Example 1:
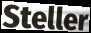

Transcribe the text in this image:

Steller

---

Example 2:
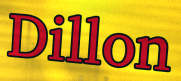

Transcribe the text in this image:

Dillon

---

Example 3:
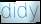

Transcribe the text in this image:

didy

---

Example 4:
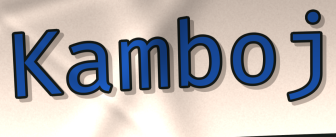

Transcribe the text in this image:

Kamboj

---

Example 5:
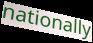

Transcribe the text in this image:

nationally